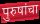
पुरुषांचा